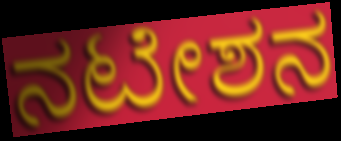
ನಟೇಶನ